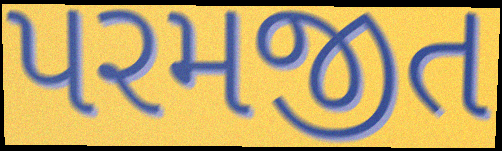
પરમજીત